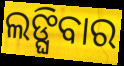
ଲଙ୍ଘିବାର